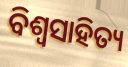
ବିଶ୍ଵସାହିତ୍ୟ